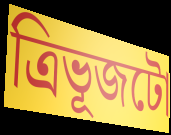
ত্ৰিভূজটো